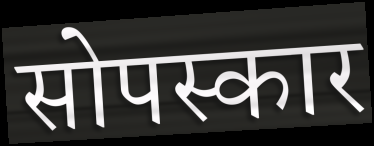
सोपस्कार